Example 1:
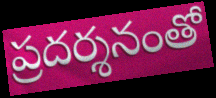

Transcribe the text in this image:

ప్రదర్శనంతో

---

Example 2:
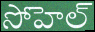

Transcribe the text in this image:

సోహెల్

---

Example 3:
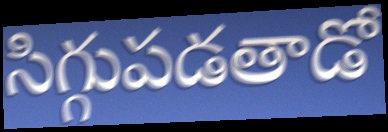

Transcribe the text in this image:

సిగ్గుపడతాడో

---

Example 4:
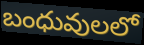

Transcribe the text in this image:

బంధువులలో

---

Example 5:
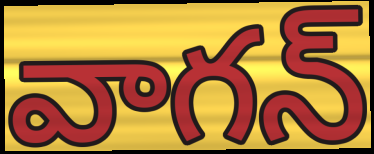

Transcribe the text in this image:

వాగన్